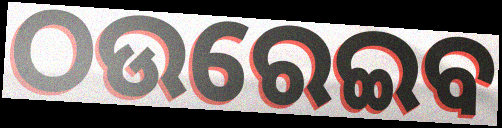
ଠଉରେଇବ